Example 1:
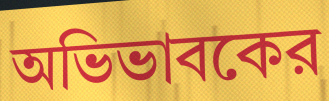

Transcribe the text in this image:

অভিভাবকের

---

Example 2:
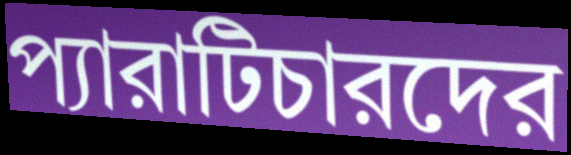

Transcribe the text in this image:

প্যারাটিচারদের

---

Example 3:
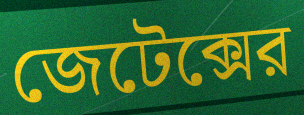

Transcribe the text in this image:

জেটেক্সের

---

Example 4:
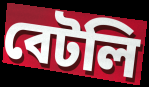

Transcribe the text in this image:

বেটলি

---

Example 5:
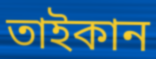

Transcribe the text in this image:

তাইকান